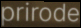
prirode